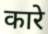
कारे